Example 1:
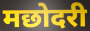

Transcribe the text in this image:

मछोदरी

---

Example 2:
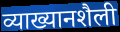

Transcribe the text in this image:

व्याख्यानशैली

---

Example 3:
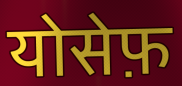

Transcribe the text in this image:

योसेफ़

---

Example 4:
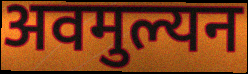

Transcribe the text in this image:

अवमुल्यन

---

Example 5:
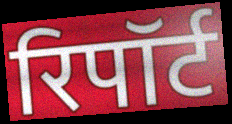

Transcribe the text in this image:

रिपॉर्ट